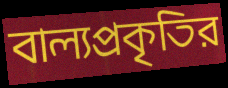
বাল্যপ্রকৃতির